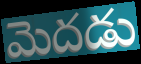
మెదడు